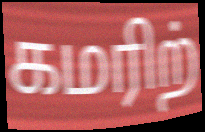
கமரிற்